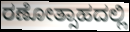
ರಣೋತ್ಸಾಹದಲ್ಲಿ